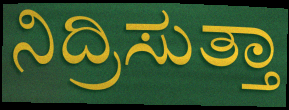
ನಿದ್ರಿಸುತ್ತಾ